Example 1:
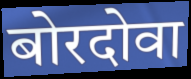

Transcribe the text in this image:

बोरदोवा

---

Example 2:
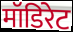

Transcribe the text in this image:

मॉडिरेट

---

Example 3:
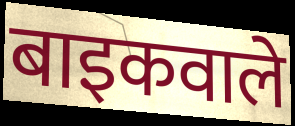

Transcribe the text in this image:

बाइकवाले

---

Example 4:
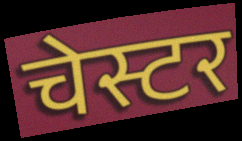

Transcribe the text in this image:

चेस्टर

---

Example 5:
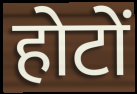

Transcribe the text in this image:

होटों